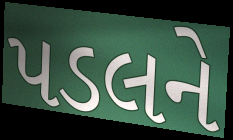
પડલને